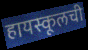
हायस्कूलची